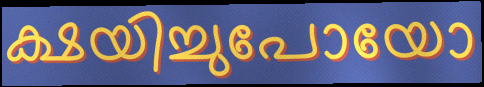
ക്ഷയിച്ചുപോയോ